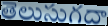
తెలుసుగదా